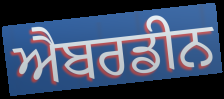
ਐਬਰਡੀਨ